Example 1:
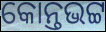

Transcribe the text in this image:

କୋନ୍ତଭଟ୍ଟ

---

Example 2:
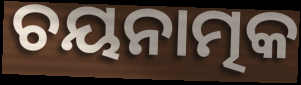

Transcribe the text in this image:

ଚୟନାତ୍ମକ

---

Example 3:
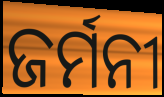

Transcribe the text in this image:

ଜର୍ମନୀ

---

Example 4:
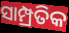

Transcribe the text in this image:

ସାମ୍ପ୍ରତିକ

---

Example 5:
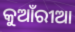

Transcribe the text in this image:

କୁଆଁରୀଆ